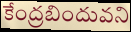
కేంద్రబిందువని